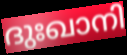
ദുഃഖാനി